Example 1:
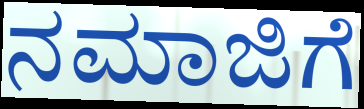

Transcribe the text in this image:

ನಮಾಜಿಗೆ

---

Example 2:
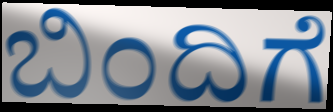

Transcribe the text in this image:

ಬಿಂದಿಗೆ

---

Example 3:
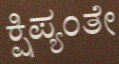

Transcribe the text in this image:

ಕ್ಷಿಪ್ಯಂತೇ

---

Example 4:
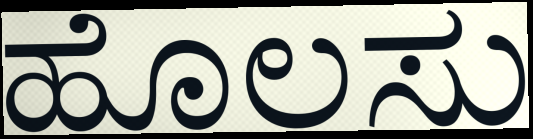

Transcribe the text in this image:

ಹೊಲಸು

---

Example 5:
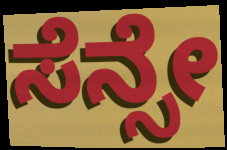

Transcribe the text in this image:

ಸೆನ್ಸೇ